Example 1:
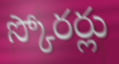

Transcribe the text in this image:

స్కోరర్లు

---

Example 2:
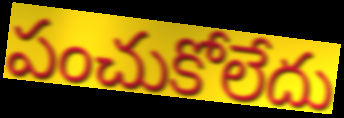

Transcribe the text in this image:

పంచుకోలేదు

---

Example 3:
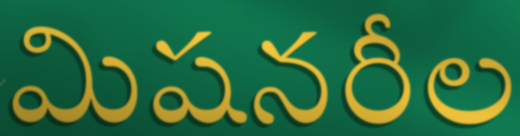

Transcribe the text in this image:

మిషనరీల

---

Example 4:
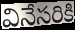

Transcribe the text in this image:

వినేసరికి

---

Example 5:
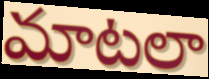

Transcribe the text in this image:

మాటలా